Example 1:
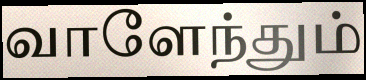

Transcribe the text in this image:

வாளேந்தும்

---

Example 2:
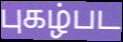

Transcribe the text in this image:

புகழ்பட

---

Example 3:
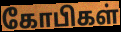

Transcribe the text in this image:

கோபிகள்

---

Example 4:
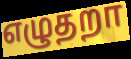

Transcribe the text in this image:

எழுதறா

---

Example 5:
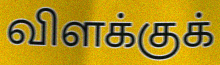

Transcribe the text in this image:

விளக்குக்